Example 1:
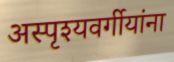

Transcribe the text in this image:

अस्पृश्यवर्गीयांना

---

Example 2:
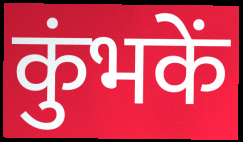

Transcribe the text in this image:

कुंभकें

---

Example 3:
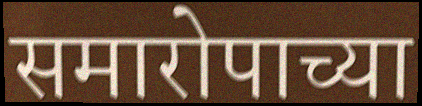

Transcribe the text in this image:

समारोपाच्या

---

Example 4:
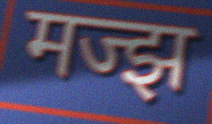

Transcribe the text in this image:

मज्झ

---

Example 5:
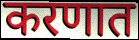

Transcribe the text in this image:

करणात